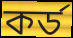
কর্ড